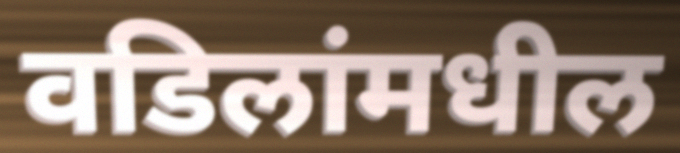
वडिलांमधील